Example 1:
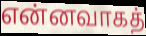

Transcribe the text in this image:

என்னவாகத்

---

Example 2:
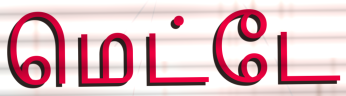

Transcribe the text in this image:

மெட்டே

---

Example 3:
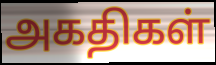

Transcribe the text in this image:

அகதிகள்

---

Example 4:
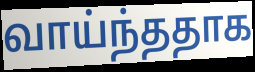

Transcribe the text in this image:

வாய்ந்ததாக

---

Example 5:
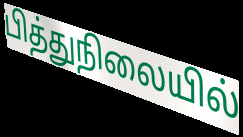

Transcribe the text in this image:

பித்துநிலையில்